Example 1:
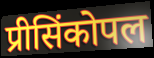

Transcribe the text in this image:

प्रीसिंकोपल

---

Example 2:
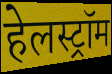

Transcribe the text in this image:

हेलस्ट्रॉम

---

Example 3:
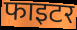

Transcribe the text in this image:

फाइटर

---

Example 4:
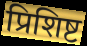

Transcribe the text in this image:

प्रिशिष्ट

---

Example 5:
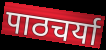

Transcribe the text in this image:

पाठचर्या